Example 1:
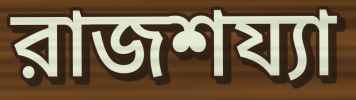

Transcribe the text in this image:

রাজশয্যা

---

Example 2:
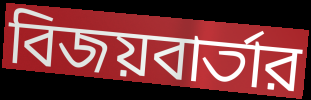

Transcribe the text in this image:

বিজয়বার্তার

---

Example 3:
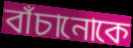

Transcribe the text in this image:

বাঁচানোকে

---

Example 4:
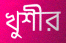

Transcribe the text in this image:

খুশীর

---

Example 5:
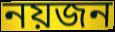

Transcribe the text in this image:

নয়জন